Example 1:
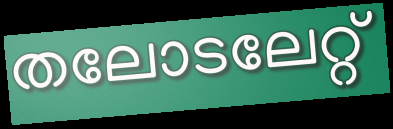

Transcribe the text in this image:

തലോടലേറ്റ്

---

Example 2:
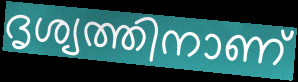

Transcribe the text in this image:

ദൃശ്യത്തിനാണ്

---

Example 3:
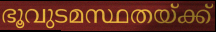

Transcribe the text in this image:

ഭൂവുടമസ്ഥതയ്ക്ക്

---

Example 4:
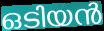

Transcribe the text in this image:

ഒടിയൻ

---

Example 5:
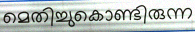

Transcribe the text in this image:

മെതിച്ചുകൊണ്ടിരുന്ന